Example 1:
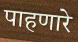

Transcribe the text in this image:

पाहणारे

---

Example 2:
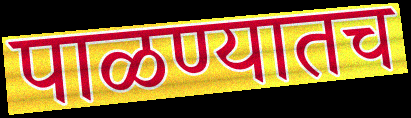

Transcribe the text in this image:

पाळण्यातच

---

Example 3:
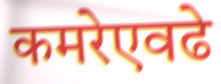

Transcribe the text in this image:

कमरेएवढे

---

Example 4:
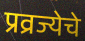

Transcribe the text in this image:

प्रव्रज्येचे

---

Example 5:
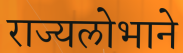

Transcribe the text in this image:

राज्यलोभाने